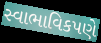
સ્વાભાવિકપણે